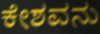
ಕೇಶವನು